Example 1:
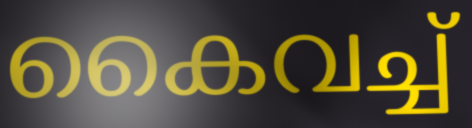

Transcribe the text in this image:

കൈവച്ച്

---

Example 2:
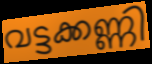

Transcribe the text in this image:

വട്ടക്കണ്ണി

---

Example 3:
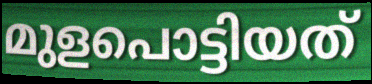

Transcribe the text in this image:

മുളപൊട്ടിയത്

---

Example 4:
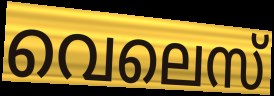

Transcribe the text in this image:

വെലെസ്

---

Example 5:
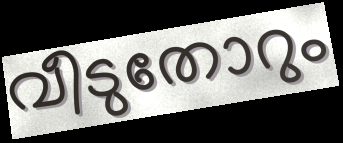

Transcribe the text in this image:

വീടുതോറും